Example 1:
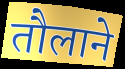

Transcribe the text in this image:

तौलाने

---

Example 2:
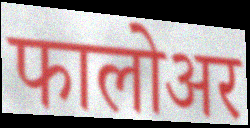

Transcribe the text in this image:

फालोअर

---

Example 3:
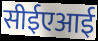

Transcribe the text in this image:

सीईएआई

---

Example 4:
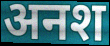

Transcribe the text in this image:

अनश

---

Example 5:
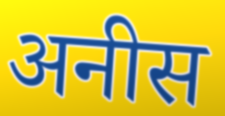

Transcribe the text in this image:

अनीस